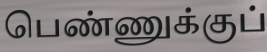
பெண்ணுக்குப்